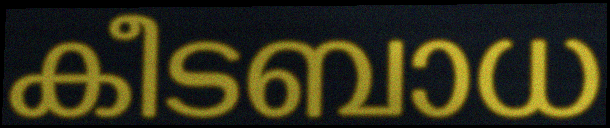
കീടബാധ